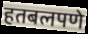
हतबलपणे